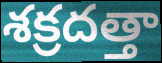
శక్రదత్తా